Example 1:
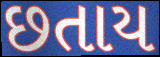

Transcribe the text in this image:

છતાય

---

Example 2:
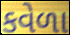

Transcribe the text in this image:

કવેળા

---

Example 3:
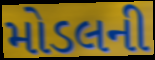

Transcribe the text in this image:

મોડલની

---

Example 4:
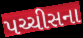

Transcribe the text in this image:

પચ્ચીસના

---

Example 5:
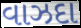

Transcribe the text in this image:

વાઝદા